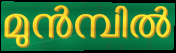
മുൻമ്പിൽ